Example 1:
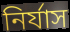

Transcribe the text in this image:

নির্যাস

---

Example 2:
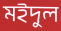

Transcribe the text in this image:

মইদুল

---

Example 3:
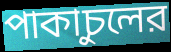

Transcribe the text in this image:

পাকাচুলের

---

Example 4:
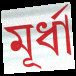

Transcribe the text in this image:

মূর্ধা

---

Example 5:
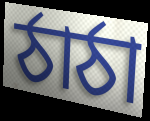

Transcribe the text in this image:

ঠাঠা